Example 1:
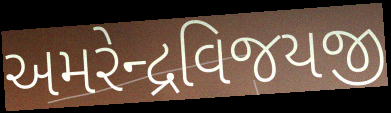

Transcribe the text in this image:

અમરેન્દ્રવિજયજી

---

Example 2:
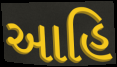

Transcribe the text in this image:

આહિ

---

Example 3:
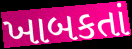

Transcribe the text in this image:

ખાબકતાં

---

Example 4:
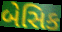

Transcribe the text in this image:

બેસિક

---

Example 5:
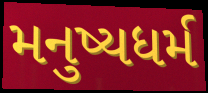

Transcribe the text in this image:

મનુષ્યધર્મ